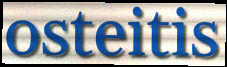
osteitis